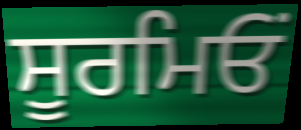
ਸੂਰਮਿਓਂ